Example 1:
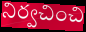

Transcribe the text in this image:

నిర్వచించి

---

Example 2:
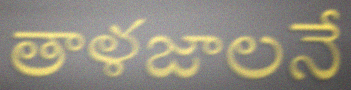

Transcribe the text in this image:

తాళజాలనే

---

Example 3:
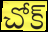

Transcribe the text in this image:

చోక్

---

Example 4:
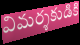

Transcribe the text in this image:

విమర్శకుడికి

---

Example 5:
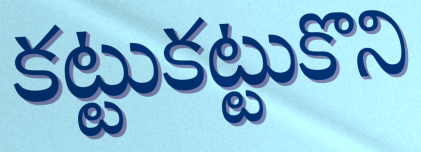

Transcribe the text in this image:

కట్టుకట్టుకొని